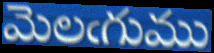
మెలఁగుము